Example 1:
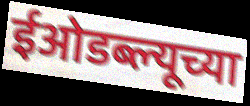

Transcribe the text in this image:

ईओडब्ल्यूच्या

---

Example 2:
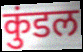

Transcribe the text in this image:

कुंडल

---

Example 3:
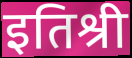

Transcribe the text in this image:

इतिश्री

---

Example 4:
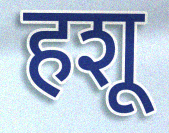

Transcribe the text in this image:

हशू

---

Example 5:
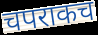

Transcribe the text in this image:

चपराकच